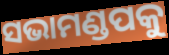
ସଭାମଣ୍ଡପକୁ